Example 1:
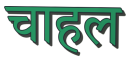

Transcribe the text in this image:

चाहल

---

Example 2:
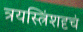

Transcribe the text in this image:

त्रयस्त्रिंशदृचं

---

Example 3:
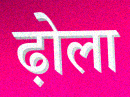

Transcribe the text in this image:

ढ़ोला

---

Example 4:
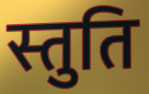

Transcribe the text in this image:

स्तुति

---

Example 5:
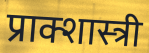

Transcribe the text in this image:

प्राक्शास्त्री